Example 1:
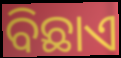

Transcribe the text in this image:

ବିଛାଏ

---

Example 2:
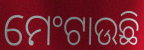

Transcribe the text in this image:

ମେଂଟାଉଛି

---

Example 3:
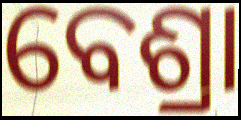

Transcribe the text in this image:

ବେଶ୍ରା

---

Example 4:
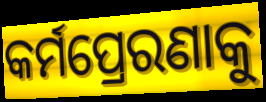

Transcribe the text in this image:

କର୍ମପ୍ରେରଣାକୁ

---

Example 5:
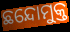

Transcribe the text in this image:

ଛନ୍ଦୋମୁକ୍ତ